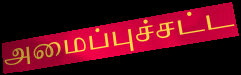
அமைப்புச்சட்ட